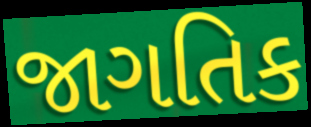
જાગતિક